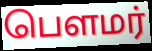
பௌமர்